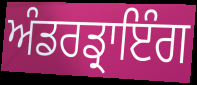
ਅੰਡਰਡ੍ਰਾਇੰਗ